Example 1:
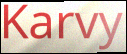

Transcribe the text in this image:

Karvy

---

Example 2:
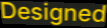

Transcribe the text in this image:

Designed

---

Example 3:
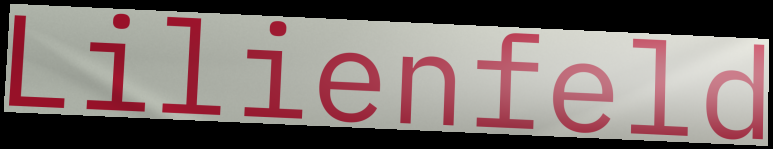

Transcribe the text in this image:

Lilienfeld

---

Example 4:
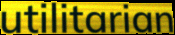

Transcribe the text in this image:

utilitarian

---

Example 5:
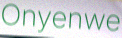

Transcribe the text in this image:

Onyenwe